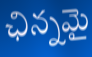
ఛిన్నమై